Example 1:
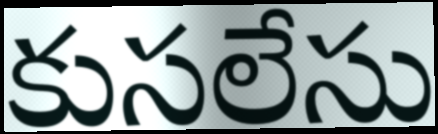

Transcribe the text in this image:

కుసలేసు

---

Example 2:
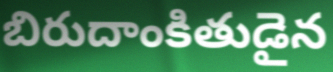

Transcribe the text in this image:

బిరుదాంకితుడైన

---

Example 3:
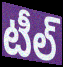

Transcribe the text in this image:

టీల్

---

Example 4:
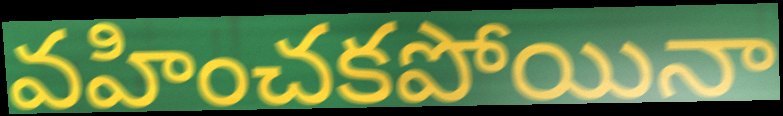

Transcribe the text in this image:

వహించకపోయినా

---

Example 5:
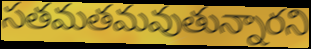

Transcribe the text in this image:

సతమతమవుతున్నారని